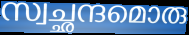
സ്വച്ഛന്ദമൊരു